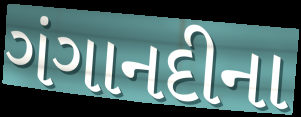
ગંગાનદીના